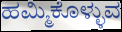
ಹಮ್ಮಿಕೊಳ್ಳುವ